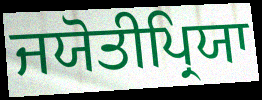
ਜਯੋਤੀਪ੍ਰਿਯਾ